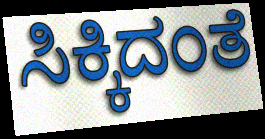
ಸಿಕ್ಕಿದಂತೆ